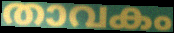
താവകം